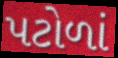
પટોળાં